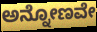
ಅನ್ನೋಣವೇ